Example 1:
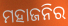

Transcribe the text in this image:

ମହାଜନିର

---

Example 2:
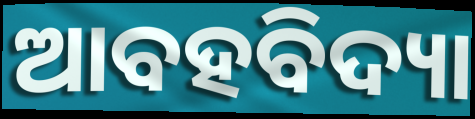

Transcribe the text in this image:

ଆବହବିଦ୍ୟା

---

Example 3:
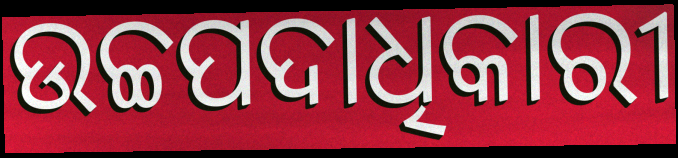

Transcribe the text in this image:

ଉଚ୍ଚପଦାଧିକାରୀ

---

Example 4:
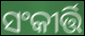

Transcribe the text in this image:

ସଂକୀର୍ତ୍ତି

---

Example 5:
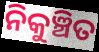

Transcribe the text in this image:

ନିକୁଞ୍ଚିତ